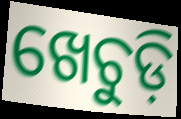
ଖେଚୁଡ଼ି